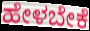
ಹೇಳಬೇಕೆ